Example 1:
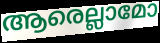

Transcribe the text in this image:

ആരെല്ലാമോ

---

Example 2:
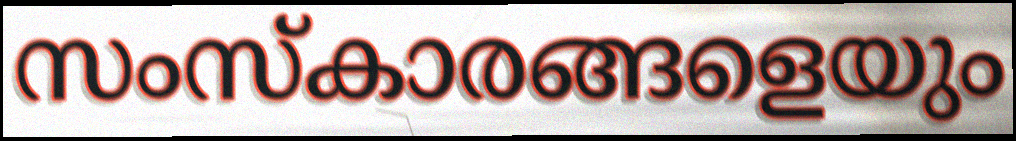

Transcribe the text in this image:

സംസ്കാരങ്ങളെയും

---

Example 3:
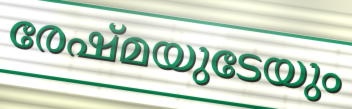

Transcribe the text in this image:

രേഷ്മയുടേയും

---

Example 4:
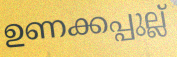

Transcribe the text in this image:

ഉണക്കപ്പുല്ല്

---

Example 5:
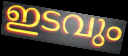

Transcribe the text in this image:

ഇടവും